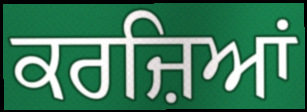
ਕਰਜ਼ਿਆਂ